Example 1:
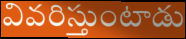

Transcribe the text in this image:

వివరిస్తుంటాడు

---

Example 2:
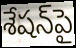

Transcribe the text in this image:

శేషన్‌పై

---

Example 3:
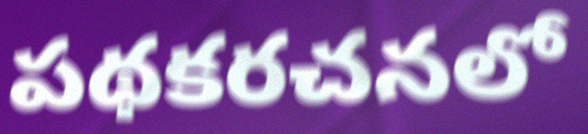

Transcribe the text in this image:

పథకరచనలో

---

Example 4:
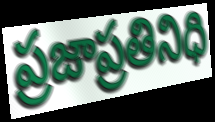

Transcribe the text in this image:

ప్రజాప్రతినిధి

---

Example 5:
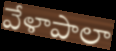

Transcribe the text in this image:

వేళాపాలా